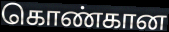
கொண்கான